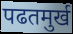
पढतमुर्ख